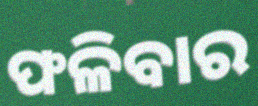
ଫଳିବାର